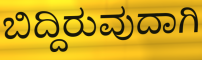
ಬಿದ್ದಿರುವುದಾಗಿ